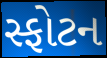
સ્ફોટન